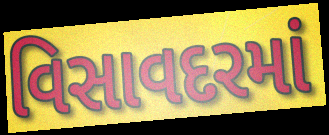
વિસાવદરમાં